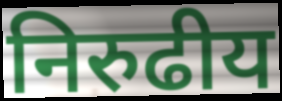
निरुढीय